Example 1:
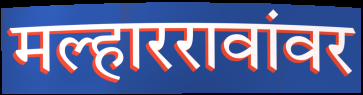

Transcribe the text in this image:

मल्हाररावांवर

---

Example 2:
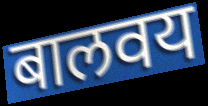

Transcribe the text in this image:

बालवय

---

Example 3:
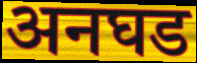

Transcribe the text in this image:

अनघड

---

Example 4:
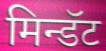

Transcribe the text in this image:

मिन्डॅट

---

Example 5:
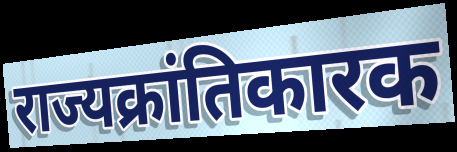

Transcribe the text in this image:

राज्यक्रांतिकारक